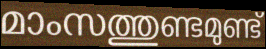
മാംസത്തുണ്ടമുണ്ട്